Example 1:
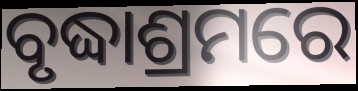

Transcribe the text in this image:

ବୃଦ୍ଧାଶ୍ରମରେ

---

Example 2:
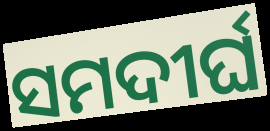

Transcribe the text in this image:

ସମଦୀର୍ଘ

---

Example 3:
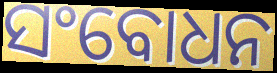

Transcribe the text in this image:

ସଂବୋଧନ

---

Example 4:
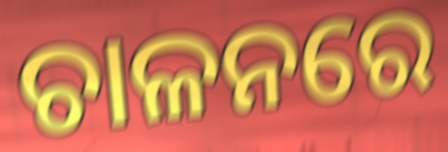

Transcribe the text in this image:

ଚାଳନରେ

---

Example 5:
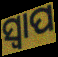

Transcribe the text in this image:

ସ୍ବାପ